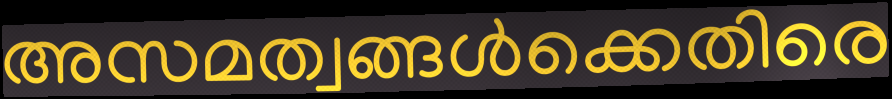
അസമത്വങ്ങൾക്കെതിരെ